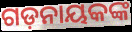
ଗଡ଼ନାୟକଙ୍କ